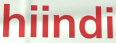
hiindi